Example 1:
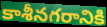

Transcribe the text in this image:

కాశీనగరానికి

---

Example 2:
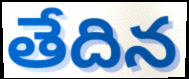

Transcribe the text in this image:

తేదిన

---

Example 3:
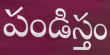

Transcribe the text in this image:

పండిస్తం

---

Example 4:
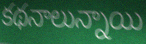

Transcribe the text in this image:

కథనాలున్నాయి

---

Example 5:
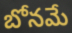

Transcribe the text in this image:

బోనమే